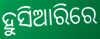
ହୁସିଆରିରେ